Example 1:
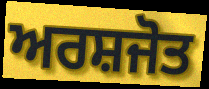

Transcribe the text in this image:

ਅਰਸ਼ਜੋਤ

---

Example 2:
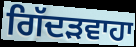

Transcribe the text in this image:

ਗਿੱਦੜਵਾਹਾ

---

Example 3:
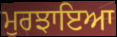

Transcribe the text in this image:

ਮੁਰਝਾਇਆ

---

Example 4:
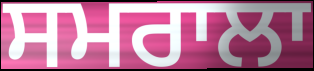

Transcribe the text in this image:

ਸਮਰਾਲਾ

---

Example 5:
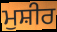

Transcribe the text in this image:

ਮੁਸ਼ੀਰ